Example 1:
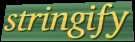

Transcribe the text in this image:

stringify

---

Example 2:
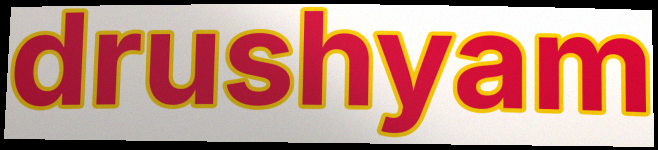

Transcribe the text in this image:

drushyam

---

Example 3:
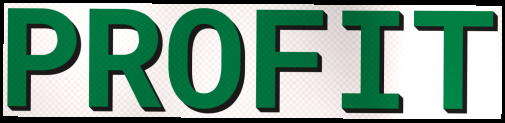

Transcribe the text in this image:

PROFIT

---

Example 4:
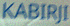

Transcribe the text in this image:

KABIRJI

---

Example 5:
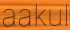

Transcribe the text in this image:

aakul